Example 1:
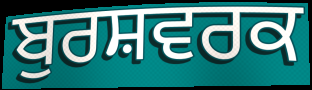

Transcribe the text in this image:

ਬੁਰਸ਼ਵਰਕ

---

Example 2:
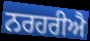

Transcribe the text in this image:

ਨਰਹਰੀਐ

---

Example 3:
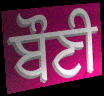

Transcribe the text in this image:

ਬੌਣੀ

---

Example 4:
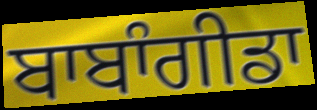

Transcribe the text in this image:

ਬਾਬਾੰਗੀਡਾ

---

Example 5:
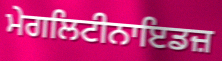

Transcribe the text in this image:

ਮੇਗਲਿਟੀਨਾਇਡਜ਼